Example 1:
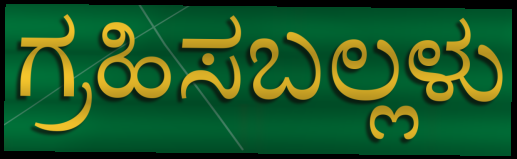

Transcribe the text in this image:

ಗ್ರಹಿಸಬಲ್ಲಳು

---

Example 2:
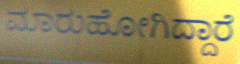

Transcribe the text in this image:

ಮಾರುಹೋಗಿದ್ದಾರೆ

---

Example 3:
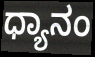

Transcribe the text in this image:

ಧ್ಯಾನಂ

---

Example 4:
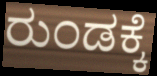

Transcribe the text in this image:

ರುಂಡಕ್ಕೆ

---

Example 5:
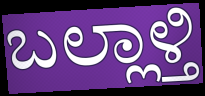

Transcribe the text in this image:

ಬಲ್ಲಾಳ್ತಿ